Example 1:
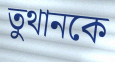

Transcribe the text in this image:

তুথানকে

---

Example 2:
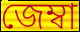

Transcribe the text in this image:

জেম্বা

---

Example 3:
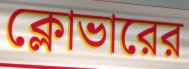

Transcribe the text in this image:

ক্লোভারের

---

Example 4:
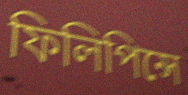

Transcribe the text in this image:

ফিলিপিন্সে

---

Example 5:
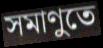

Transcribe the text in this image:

সমাণুতে